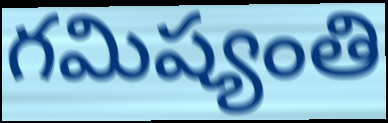
గమిష్యంతి